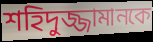
শহিদুজ্জামানকে